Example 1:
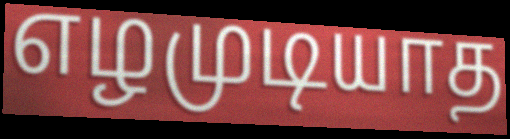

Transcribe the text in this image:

எழமுடியாத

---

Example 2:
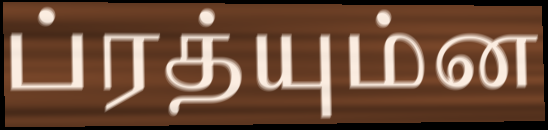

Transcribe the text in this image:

ப்ரத்யும்ன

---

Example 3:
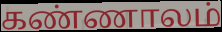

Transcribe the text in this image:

கண்ணாலம்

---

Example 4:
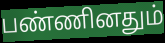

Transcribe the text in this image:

பண்ணினதும்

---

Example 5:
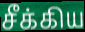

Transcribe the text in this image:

சீக்கிய